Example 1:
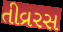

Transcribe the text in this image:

તીવ્રરસ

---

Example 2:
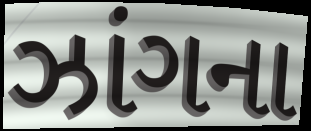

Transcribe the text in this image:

ઝાંગના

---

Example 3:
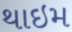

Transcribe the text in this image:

થાઇમ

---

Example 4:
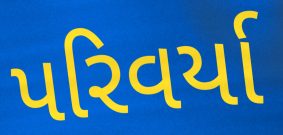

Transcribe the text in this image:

પરિવર્યા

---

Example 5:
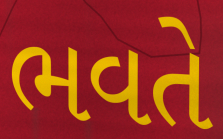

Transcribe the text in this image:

ભવતે